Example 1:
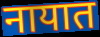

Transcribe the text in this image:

नायात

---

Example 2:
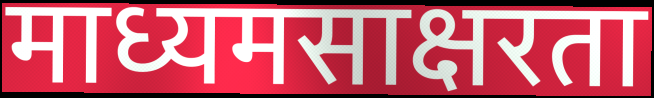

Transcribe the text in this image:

माध्यमसाक्षरता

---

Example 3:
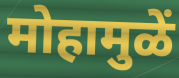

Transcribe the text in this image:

मोहामुळें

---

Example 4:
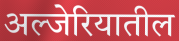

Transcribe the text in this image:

अल्जेरियातील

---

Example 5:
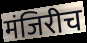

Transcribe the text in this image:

मंजिरीच